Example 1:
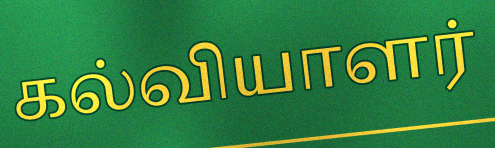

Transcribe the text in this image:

கல்வியாளர்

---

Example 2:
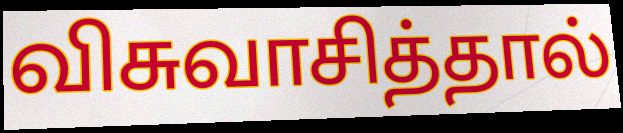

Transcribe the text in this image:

விசுவாசித்தால்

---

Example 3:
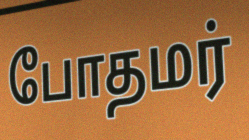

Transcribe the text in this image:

போதமர்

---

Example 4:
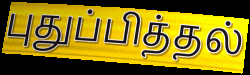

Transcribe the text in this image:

புதுப்பித்தல்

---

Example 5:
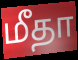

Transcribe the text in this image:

மீதா